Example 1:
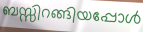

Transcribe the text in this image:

ബസ്സിറങ്ങിയപ്പോൾ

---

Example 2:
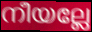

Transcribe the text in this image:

നീയല്ലേ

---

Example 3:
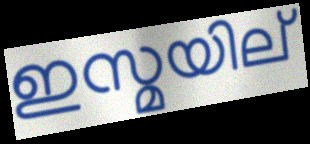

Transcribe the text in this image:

ഇസ്മയില്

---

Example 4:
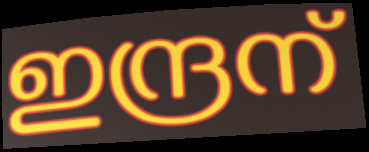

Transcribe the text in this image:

ഇന്ദ്രന്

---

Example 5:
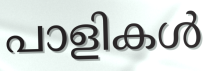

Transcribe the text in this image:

പാളികൾ